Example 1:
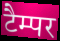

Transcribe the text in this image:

टैम्पर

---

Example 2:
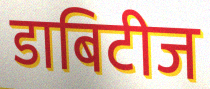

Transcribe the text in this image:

डाबिटीज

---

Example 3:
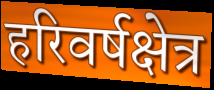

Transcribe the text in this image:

हरिवर्षक्षेत्र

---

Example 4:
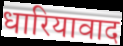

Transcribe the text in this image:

धारियावाद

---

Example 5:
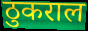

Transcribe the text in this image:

ठुकराल